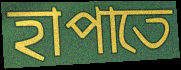
হাপাতে